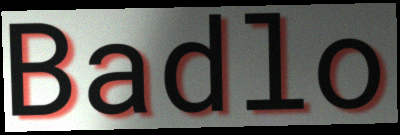
Badlo